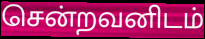
சென்றவனிடம்